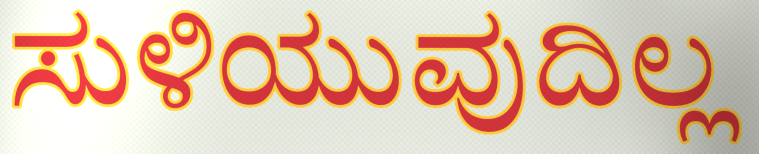
ಸುಳಿಯುವುದಿಲ್ಲ